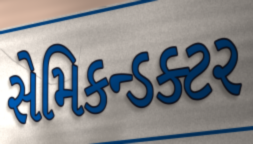
સેમિકન્ડક્ટર